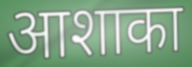
आशाका